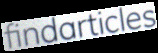
findarticles